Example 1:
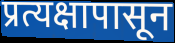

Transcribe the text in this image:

प्रत्यक्षापासून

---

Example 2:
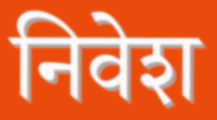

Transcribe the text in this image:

निवेश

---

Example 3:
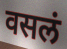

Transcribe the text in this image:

वसलं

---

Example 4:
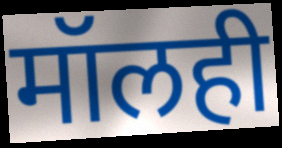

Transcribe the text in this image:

मॉलही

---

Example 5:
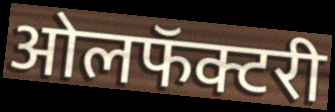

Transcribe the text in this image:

ओलफॅक्टरी